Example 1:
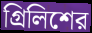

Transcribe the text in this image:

গ্রিলিশের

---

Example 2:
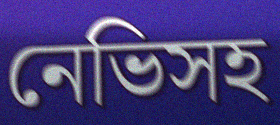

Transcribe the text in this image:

নেভিসহ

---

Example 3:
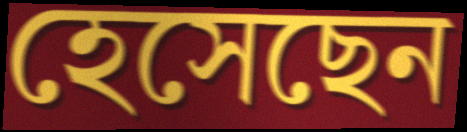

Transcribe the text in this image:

হেসেছেন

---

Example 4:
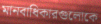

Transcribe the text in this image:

মানবাধিকারগুলোকে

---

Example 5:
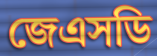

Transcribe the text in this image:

জেএসডি